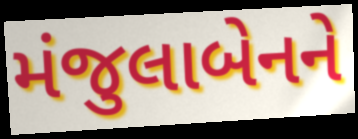
મંજુલાબેનને